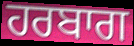
ਹਰਬਾਗ